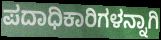
ಪದಾಧಿಕಾರಿಗಳನ್ನಾಗಿ